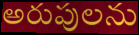
అరుపులను